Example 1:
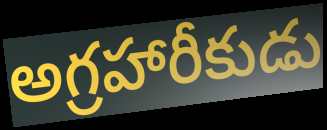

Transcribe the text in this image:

అగ్రహారీకుడు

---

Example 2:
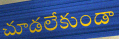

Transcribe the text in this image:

చూడలేకుండా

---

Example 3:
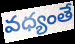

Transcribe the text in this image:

వధ్యంతే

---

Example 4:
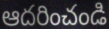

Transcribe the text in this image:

ఆదరించండి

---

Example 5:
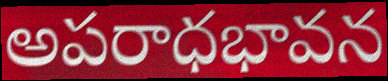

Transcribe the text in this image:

అపరాధభావన